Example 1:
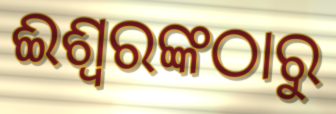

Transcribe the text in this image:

ଈଶ୍ଵରଙ୍କଠାରୁ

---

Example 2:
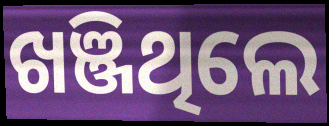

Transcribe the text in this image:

ଖଞ୍ଜିଥିଲେ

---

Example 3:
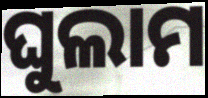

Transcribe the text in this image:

ଘୁଲାମ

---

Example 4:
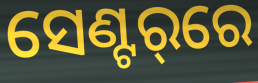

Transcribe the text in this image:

ସେଣ୍ଟର୍‌ରେ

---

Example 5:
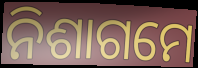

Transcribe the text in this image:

ନିଶାଗମେ